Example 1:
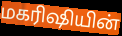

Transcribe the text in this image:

மகரிஷியின்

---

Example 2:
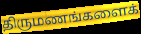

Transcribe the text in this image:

திருமணங்களைக்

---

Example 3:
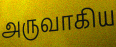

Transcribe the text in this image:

அருவாகிய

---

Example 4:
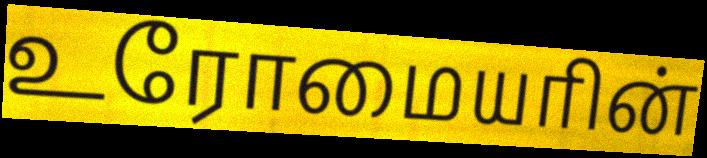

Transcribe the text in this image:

உரோமையரின்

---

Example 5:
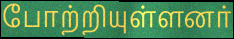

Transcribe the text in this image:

போற்றியுள்ளனர்